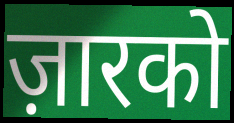
ज़ारको